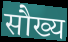
सौख्य